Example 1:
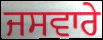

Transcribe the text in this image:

ਜਸਵਾਰੇ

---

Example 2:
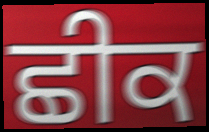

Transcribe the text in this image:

ਛੀਕ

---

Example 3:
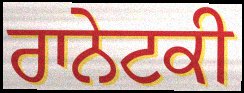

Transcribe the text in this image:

ਰਾਨੇਟਕੀ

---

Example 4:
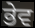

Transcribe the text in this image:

ਭੇਵ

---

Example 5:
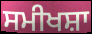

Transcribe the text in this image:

ਸਮੀਖਸ਼ਾ